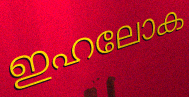
ഇഹലോക